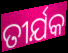
ତୀର୍ଯକ